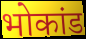
भोकांड